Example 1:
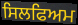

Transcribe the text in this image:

ਸਿਲਫਿਅਮ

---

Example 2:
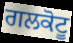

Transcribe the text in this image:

ਗਲਕੋਟੂ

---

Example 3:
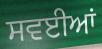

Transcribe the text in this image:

ਸਵਈਆਂ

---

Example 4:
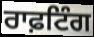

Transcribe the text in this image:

ਰਾਫ਼ਟਿੰਗ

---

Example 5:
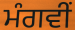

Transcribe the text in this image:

ਮੰਗਵੀਂ